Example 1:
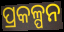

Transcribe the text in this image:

ପ୍ରକଳ୍ପନ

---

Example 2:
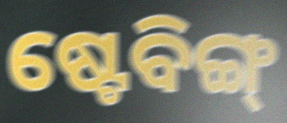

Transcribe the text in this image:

ଷ୍ଟେବିଙ୍ଗ୍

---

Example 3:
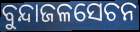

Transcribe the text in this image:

ବୁନ୍ଦାଜଳସେଚନ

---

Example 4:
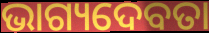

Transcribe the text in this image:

ଭାଗ୍ୟଦେବତା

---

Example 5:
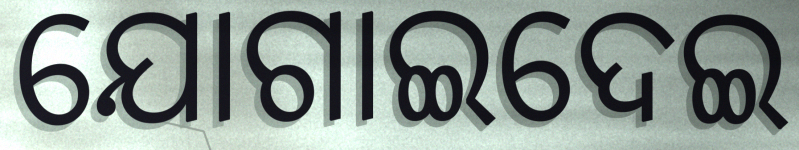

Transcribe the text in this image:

ଯୋଗାଇଦେଇ